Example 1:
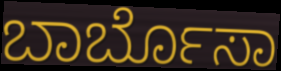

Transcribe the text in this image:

ಬಾರ್ಬೊಸಾ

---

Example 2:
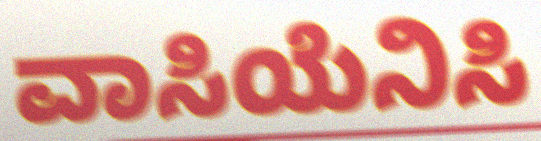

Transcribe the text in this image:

ವಾಸಿಯೆನಿಸಿ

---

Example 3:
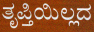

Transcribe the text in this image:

ತೃಪ್ತಿಯಿಲ್ಲದ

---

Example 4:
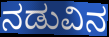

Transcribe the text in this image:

ನಡುವಿನ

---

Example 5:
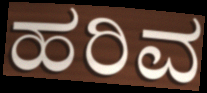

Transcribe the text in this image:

ಹರಿವ